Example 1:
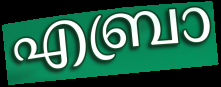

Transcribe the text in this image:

എബ്രാ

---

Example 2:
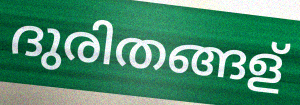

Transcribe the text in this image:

ദുരിതങ്ങള്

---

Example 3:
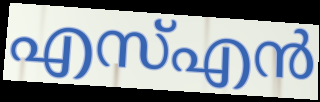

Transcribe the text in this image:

എസ്എൻ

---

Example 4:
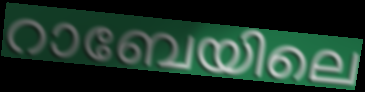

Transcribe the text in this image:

റാബേയിലെ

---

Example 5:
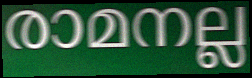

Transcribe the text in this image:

രാമനല്ല